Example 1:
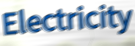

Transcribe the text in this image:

Electricity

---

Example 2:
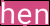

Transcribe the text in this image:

hen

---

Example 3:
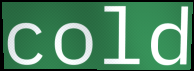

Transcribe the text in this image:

cold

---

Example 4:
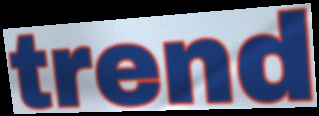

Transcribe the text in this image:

trend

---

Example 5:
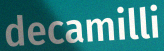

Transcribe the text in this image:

decamilli